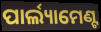
ପାର୍ଲ୍ୟାମେଣ୍ଟ